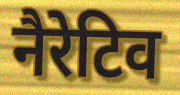
नैरेटिव